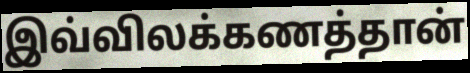
இவ்விலக்கணத்தான்